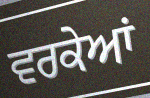
ਵਰਕੇਆਂ